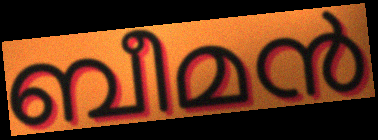
ബീമൻ